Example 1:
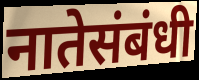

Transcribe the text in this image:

नातेसंबंधी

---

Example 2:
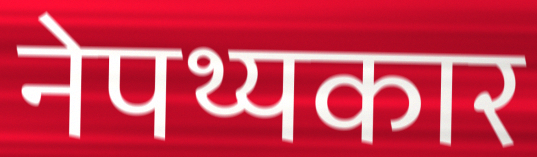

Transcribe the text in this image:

नेपथ्यकार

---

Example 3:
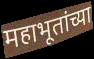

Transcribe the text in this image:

महाभूतांच्या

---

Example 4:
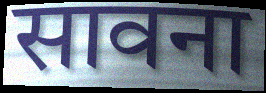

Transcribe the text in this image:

सावना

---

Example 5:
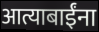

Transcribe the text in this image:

आत्याबाईंना